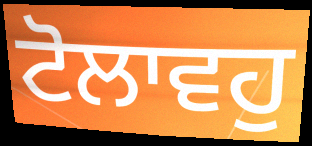
ਟੋਲਾਵਹੁ